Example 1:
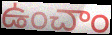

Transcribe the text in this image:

ఉంచాం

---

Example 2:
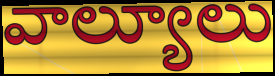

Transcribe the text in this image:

వాల్యూలు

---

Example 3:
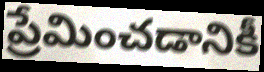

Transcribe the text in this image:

ప్రేమించడానికీ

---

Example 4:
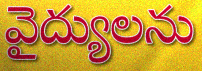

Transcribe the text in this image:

వైద్యులను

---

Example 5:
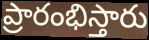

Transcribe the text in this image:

ప్రారంభిస్తారు